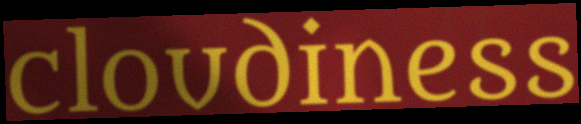
cloudiness